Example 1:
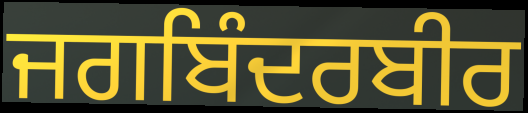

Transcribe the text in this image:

ਜਗਬਿੰਦਰਬੀਰ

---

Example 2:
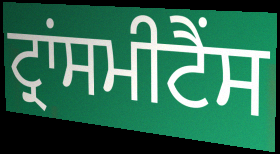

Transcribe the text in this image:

ਟ੍ਰਾਂਸਮੀਟੈਂਸ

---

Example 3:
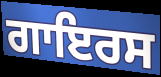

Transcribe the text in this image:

ਗਾਇਰਸ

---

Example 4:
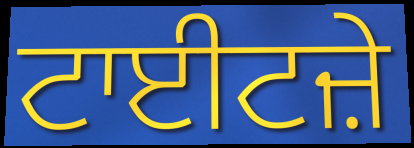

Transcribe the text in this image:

ਟਾਈਟਜ਼ੇ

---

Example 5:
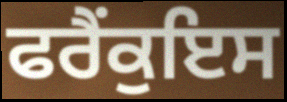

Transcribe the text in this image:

ਫਰੈਂਕੁਇਸ